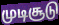
முடிசூடு